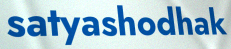
satyashodhak